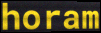
horam